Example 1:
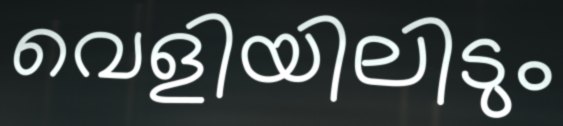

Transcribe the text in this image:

വെളിയിലിടും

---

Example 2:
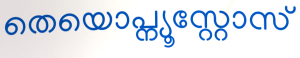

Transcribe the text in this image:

തെയൊപ്ന്യൂസ്റ്റോസ്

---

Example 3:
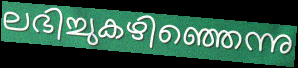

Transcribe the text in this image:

ലഭിച്ചുകഴിഞ്ഞെന്നു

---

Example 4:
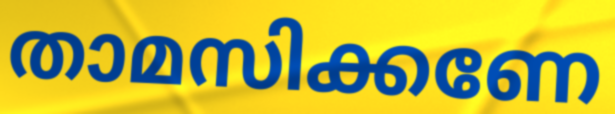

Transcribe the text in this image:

താമസിക്കണേ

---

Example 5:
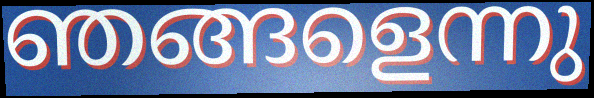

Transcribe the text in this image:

ഞങ്ങളെന്നു